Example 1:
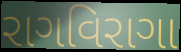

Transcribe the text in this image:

રાગવિરાગા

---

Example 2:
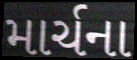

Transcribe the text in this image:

માર્ચના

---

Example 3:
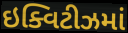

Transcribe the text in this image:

ઇક્વિટીઝમાં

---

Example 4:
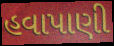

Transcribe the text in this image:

હવાપાણી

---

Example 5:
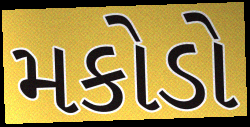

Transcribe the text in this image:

મકોડો